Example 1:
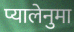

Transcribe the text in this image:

प्यालेनुमा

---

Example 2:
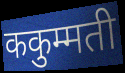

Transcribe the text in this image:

ककुम्मती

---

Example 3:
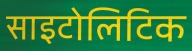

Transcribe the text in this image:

साइटोलिटिक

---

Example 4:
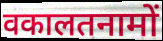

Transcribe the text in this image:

वकालतनामों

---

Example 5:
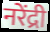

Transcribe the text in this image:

नरेंद्री